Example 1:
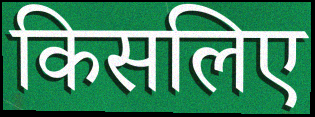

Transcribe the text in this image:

किसलिए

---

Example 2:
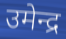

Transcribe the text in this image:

उमेन्द्र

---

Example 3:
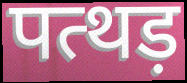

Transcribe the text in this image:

पत्थड़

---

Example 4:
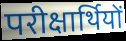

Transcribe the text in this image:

परीक्षार्थियों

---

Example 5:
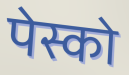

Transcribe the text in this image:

पेस्को